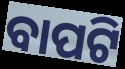
ବାପଟି